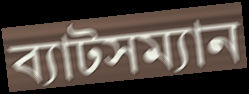
ব্যাটসম্যান